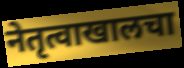
नेतृत्वाखालचा